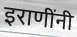
इराणींनी